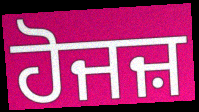
ਹੋਜਜ਼